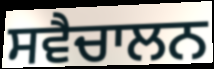
ਸਵੈਚਾਲਨ